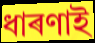
ধাৰণাই